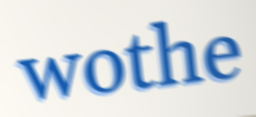
wothe